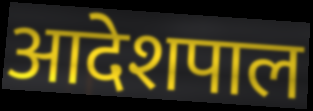
आदेशपाल